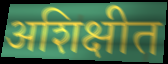
अशिक्षीत